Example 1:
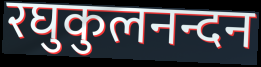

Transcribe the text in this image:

रघुकुलनन्दन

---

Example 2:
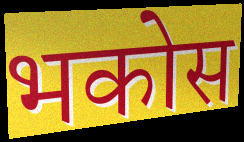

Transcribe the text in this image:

भकोस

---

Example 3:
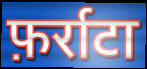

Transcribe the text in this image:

फ़र्राटा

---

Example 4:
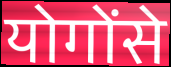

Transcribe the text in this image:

योगोंसे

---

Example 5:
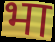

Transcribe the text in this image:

भा